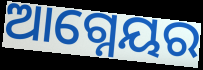
ଆଗ୍ନେୟର